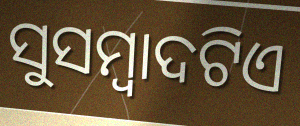
ସୁସମ୍ବାଦଟିଏ